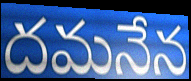
దమనేన